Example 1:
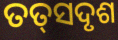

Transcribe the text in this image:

ତତ୍‌ସଦୃଶ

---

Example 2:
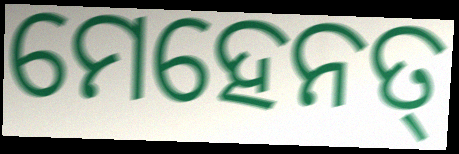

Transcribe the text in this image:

ମେହେନତ୍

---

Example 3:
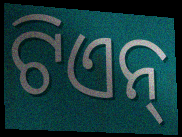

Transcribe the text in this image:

ଟିଏନ୍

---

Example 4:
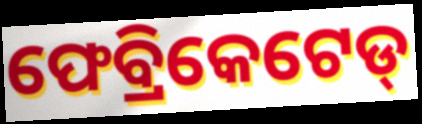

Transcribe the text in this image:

ଫେବ୍ରିକେଟେଡ୍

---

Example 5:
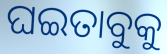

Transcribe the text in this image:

ଘଇତାବୁକୁ